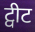
ट्वीट